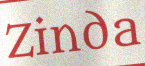
Zinda